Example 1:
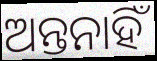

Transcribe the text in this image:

ଅନ୍ତନାହିଁ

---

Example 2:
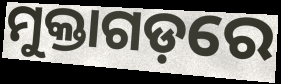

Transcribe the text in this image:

ମୁକ୍ତାଗଡ଼ରେ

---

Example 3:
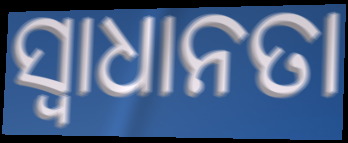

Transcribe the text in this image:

ସ୍ୱାଧାନତା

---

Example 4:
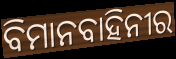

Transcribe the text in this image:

ବିମାନବାହିନୀର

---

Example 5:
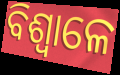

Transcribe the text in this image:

ବିଶ୍ଵାଳେ